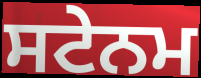
ਸਟੇਨਮ